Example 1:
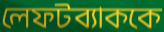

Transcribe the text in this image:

লেফটব্যাককে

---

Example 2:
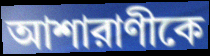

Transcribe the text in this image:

আশারাণীকে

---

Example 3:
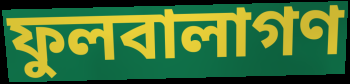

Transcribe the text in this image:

ফুলবালাগণ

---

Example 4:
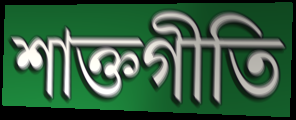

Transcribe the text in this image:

শাক্তগীতি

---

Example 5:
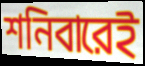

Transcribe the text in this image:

শনিবারেই